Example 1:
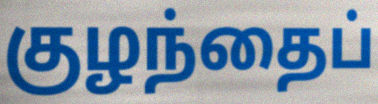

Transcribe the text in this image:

குழந்தைப்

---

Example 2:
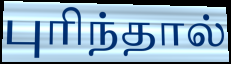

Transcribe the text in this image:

புரிந்தால்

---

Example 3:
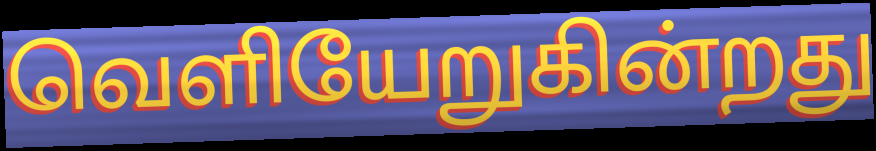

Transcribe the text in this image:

வெளியேறுகின்றது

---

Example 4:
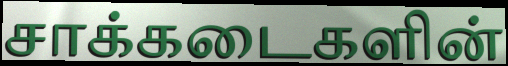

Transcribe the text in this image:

சாக்கடைகளின்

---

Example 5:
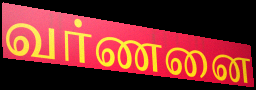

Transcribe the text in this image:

வர்ணனை